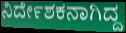
ನಿರ್ದೇಶಕನಾಗಿದ್ದ